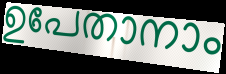
ഉപേതാനാം